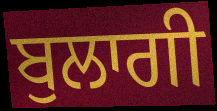
ਬੁਲਾਗੀ